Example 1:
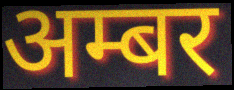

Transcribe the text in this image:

अम्बर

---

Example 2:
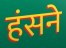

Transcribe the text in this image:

हंसने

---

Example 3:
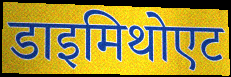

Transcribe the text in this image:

डाइमिथोएट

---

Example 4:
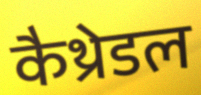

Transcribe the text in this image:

कैथ्रेडल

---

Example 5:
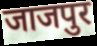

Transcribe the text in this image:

जाजपुर